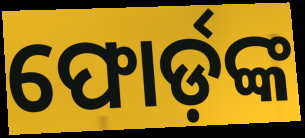
ଫୋର୍ଡ଼ଙ୍କ